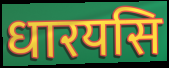
धारयसि